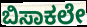
ಬಿಸಾಕಲೇ